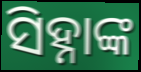
ସିହ୍ନାଙ୍କ